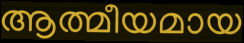
ആത്മീയമായ